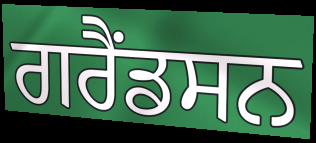
ਗਰੈਂਡਸਨ